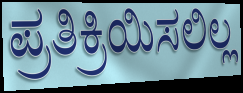
ಪ್ರತಿಕ್ರಿಯಿಸಲಿಲ್ಲ